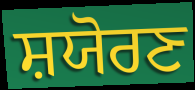
ਸ਼ਯੋਰਣ